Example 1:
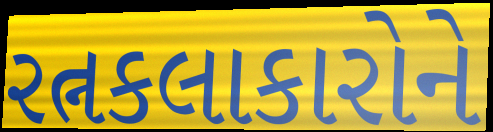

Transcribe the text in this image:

રત્નકલાકારોને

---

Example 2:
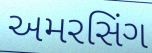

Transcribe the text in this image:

અમરસિંગ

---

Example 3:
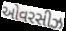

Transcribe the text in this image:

ઓવરસીઝ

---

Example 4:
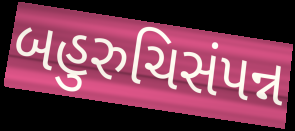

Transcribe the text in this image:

બહુરુચિસંપન્ન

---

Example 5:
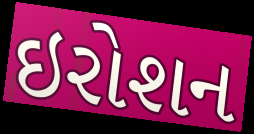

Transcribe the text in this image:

ઇરોશન